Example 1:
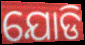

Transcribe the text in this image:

ଯୋଡି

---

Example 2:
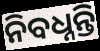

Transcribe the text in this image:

ନିବଧ୍ନନ୍ତି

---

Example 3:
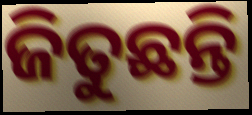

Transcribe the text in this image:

ଜିତୁଛନ୍ତି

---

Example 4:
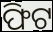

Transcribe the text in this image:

ଫିଟ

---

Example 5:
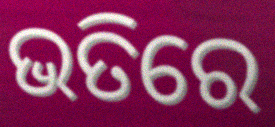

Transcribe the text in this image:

ଭତିରେ